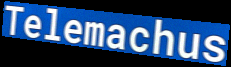
Telemachus